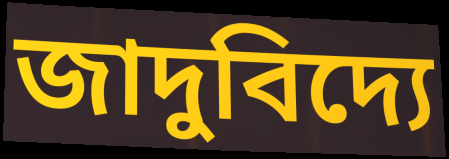
জাদুবিদ্যে